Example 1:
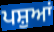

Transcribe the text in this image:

ਪਸ਼ੁਆਂ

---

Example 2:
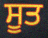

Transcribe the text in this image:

ਸੂਤ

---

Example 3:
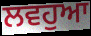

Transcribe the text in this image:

ਲਵਹੁਆ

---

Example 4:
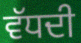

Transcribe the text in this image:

ਵੱਧਦੀ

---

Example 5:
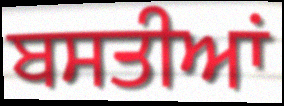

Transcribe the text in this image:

ਬਸਤੀਆਂ